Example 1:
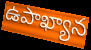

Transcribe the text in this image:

ఉపాఖ్యాన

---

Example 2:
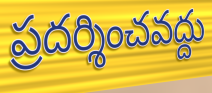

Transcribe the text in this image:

ప్రదర్శించవద్దు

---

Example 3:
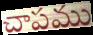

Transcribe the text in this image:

చాపము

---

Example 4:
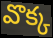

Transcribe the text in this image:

వొక్క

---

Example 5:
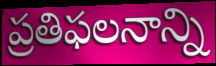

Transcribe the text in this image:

ప్రతిఫలనాన్ని